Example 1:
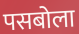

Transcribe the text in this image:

पसबोला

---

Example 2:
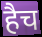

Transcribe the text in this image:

हैच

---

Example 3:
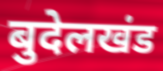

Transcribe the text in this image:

बुदेलखंड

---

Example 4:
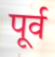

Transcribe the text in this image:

पूर्व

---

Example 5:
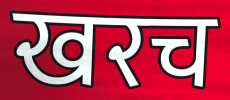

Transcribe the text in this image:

खरच